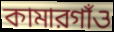
কামারগাঁও